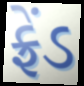
ફ્રેંડ